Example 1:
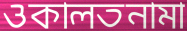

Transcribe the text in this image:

ওকালতনামা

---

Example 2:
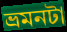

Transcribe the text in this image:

ভ্রমনটা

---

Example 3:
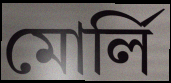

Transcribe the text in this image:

মোর্লি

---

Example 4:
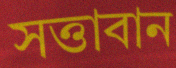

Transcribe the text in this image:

সত্তাবান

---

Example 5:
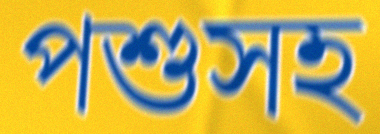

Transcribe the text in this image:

পশুসহ